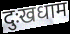
दुःखधाम